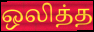
ஒலித்த